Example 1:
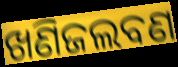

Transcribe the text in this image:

ଖଣିଜଲବଣ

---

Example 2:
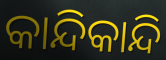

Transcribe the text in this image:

କାନ୍ଦିକାନ୍ଦି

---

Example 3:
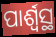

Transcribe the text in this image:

ପାର୍ଶ୍ୱସ୍ଥ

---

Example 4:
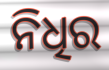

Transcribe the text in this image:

ନିଧିର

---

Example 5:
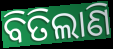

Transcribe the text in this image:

ବିତିଲାଣି